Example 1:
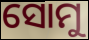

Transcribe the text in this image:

ସୋମୁ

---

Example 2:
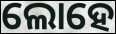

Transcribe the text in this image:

ଲୋହେ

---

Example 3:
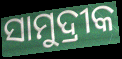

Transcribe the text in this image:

ସାମୁଦ୍ରୀକ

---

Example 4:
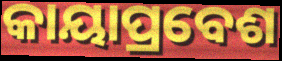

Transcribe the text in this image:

କାୟାପ୍ରବେଶ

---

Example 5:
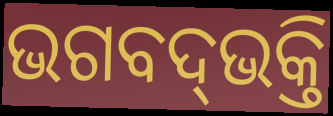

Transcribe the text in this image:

ଭଗବଦ୍‌ଭକ୍ତି